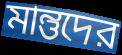
মান্তুদের